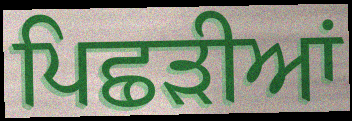
ਪਿਛੜੀਆਂ